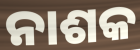
ନାଶକ